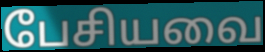
பேசியவை